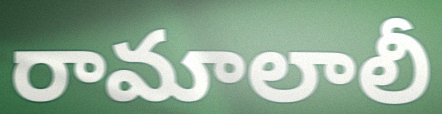
రామాలాలీ